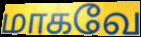
மாகவே